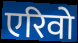
एरिवो